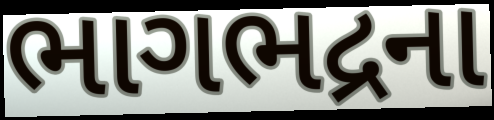
ભાગભદ્રના